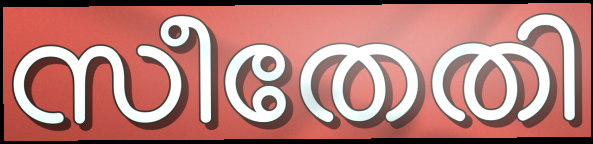
സീതേതി